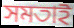
সমতাই